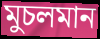
মুচলমান